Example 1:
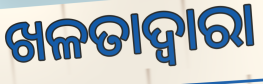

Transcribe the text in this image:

ଖଳତାଦ୍ଵାରା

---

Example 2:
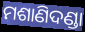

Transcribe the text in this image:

ମଶାଣିଦଣ୍ଡା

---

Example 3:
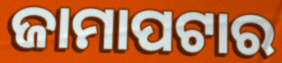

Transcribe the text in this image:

ଜାମାପଟାର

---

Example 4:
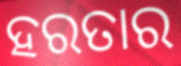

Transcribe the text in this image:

ହରତାର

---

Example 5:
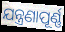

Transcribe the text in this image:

ଯନ୍ତ୍ରଣାପୂର୍ଣ୍ଣ